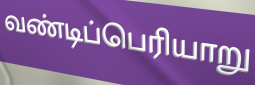
வண்டிப்பெரியாறு